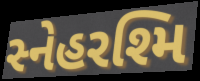
સ્નેહરશ્મિ